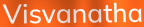
Visvanatha